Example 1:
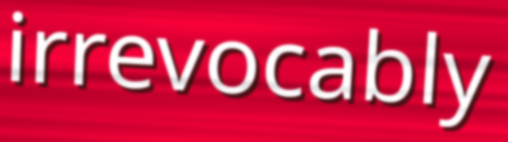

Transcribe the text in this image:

irrevocably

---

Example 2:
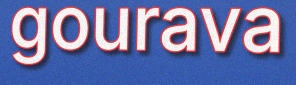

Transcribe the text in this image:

gourava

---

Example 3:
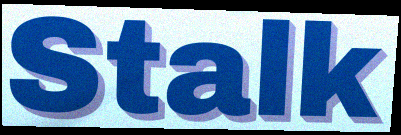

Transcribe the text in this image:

Stalk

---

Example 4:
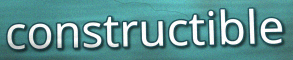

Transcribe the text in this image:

constructible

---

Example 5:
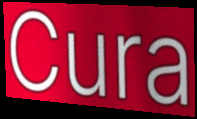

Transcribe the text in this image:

Cura